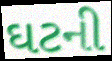
ઘટની